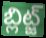
బ్లిట్జ్